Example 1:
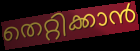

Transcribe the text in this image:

തെറ്റിക്കാൻ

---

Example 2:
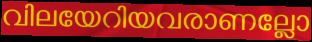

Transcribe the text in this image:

വിലയേറിയവരാണല്ലോ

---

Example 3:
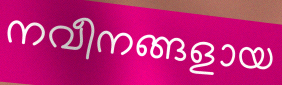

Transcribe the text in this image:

നവീനങ്ങളായ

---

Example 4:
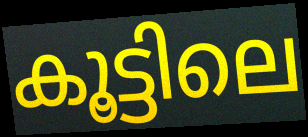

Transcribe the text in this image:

കൂട്ടിലെ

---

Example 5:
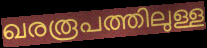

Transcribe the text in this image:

ഖരരൂപത്തിലുള്ള